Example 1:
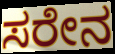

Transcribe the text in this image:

ಸರೇನ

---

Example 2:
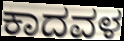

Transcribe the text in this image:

ಕಾದವಳ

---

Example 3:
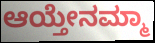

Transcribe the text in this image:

ಆಯ್ತೇನಮ್ಮಾ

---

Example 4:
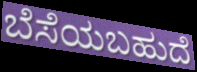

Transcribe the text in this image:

ಬೆಸೆಯಬಹುದೆ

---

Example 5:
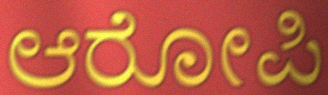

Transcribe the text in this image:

ಆರೋಪಿ